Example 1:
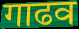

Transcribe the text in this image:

गाढव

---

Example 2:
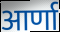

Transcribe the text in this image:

आर्णा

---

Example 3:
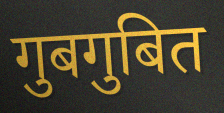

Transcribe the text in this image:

गुबगुबित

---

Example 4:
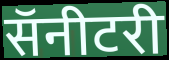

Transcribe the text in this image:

सॅनीटरी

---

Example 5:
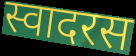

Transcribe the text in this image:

स्वादरस